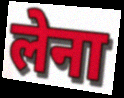
लेना